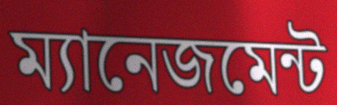
ম্যানেজমেন্ট